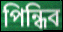
পিন্ধিব